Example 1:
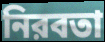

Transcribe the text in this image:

নিরবতা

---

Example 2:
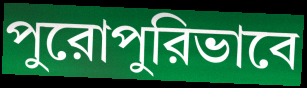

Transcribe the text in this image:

পুরোপুরিভাবে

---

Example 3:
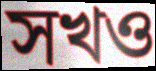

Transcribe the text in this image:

সখও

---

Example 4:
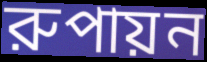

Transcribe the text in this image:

রুপায়ন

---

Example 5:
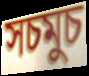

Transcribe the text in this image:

সচমুচ